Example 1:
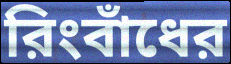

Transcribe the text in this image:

রিংবাঁধের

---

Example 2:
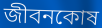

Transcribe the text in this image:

জীবনকোষ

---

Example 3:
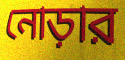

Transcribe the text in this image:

নোড়ার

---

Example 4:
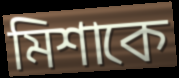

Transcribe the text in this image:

মিশাকে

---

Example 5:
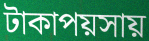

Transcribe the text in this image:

টাকাপয়সায়